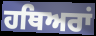
ਹਥਿਅਰਾਂ